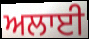
ਅਲਾਈ